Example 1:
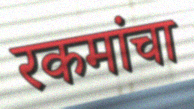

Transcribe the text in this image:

रकमांचा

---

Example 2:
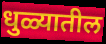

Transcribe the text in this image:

धुळ्यातील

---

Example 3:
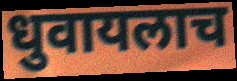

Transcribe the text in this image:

धुवायलाच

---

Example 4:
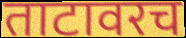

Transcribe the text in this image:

ताटावरच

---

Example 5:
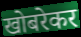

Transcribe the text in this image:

खोबरेकर